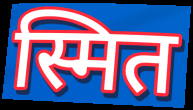
स्मित